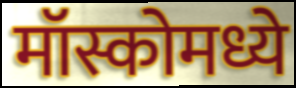
मॉस्कोमध्ये